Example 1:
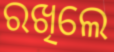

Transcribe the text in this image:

ରଖିଲେ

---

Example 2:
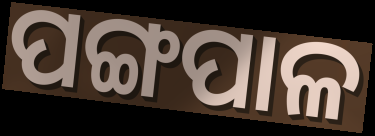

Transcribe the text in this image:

ପଙ୍ଗପାଳ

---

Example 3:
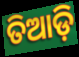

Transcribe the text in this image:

ତିଆଡ଼ି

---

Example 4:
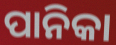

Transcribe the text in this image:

ପାନିକା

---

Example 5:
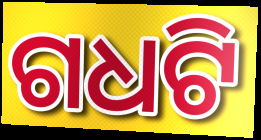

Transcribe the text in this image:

ଗଧଟି